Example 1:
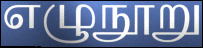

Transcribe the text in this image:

எழுநூறு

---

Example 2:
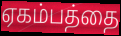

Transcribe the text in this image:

ஏகம்பத்தை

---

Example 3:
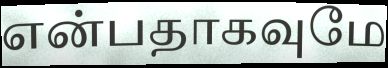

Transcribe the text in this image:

என்பதாகவுமே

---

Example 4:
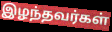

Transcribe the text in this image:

இழந்தவர்கள்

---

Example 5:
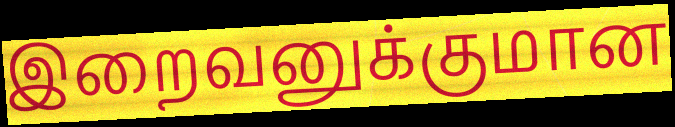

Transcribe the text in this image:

இறைவனுக்குமான